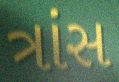
ત્રાંસ